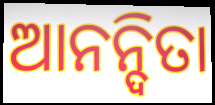
ଆନନ୍ଦିତା